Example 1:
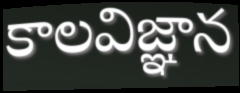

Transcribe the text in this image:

కాలవిజ్ఞాన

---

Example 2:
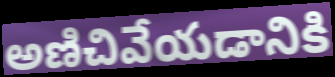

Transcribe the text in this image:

అణిచివేయడానికి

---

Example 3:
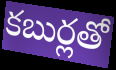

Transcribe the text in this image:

కబుర్లతో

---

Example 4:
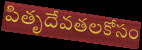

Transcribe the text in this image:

పితృదేవతలకోసం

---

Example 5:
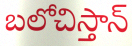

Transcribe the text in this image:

బలోచిస్తాన్